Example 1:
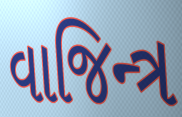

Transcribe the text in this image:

વાજિન્ત્ર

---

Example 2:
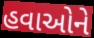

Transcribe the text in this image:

હવાઓને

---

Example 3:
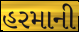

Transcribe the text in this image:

હરમાની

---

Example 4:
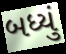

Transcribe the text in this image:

બધ્યું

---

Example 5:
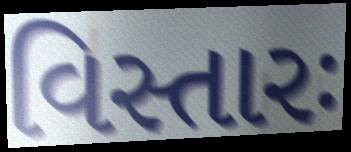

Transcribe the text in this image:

વિસ્તારઃ